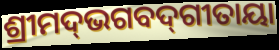
ଶ୍ରୀମଦ୍‌ଭଗବଦ୍‌ଗୀତାୟା